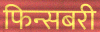
फिन्सबरी